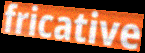
fricative